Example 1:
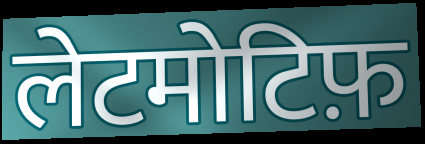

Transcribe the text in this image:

लेटमोटिफ़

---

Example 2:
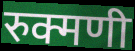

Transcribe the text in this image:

रुक्मणी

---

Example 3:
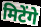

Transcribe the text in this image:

मिटेंगे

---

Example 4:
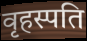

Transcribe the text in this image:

वृहस्पति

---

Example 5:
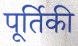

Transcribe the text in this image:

पूर्तिकी